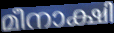
മീനാക്ഷി